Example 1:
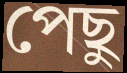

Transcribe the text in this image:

পেছু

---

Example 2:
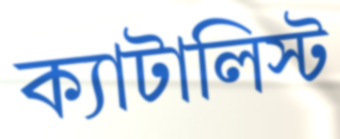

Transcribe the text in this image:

ক্যাটালিস্ট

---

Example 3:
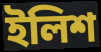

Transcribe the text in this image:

ইলিশ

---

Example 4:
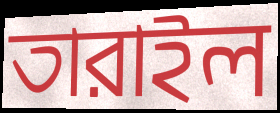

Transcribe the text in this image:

তারাইল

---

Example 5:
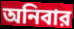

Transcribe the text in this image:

অনিবার